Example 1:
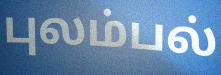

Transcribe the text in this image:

புலம்பல்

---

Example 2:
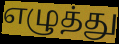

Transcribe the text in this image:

எழுத்து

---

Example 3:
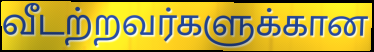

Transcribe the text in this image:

வீடற்றவர்களுக்கான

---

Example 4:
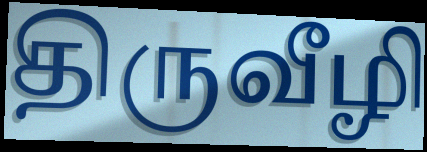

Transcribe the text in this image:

திருவீழி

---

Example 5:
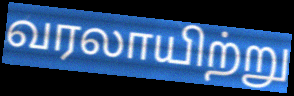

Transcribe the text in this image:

வரலாயிற்று